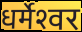
धर्मेश्वर